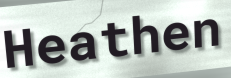
Heathen